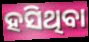
ହସିଥିବା